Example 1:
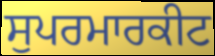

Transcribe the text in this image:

ਸੁਪਰਮਾਰਕੀਟ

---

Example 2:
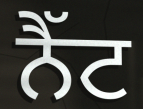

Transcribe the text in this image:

ਨੈੱਟ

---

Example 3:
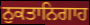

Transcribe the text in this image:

ਨੁਕਤਾਨਿਗਾਹ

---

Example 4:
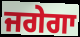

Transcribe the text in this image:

ਜਗੇਗਾ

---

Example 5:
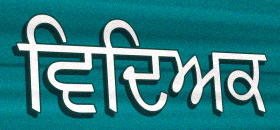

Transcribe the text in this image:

ਵਿਦਿਅਕ